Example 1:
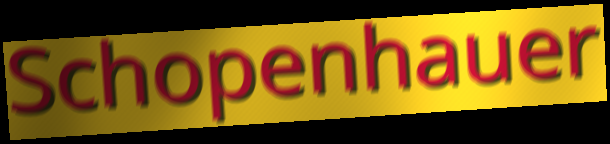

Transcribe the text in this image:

Schopenhauer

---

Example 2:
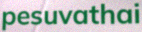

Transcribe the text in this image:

pesuvathai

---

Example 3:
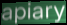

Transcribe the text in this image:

apiary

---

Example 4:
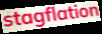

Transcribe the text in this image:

stagflation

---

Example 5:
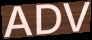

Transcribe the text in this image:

ADV